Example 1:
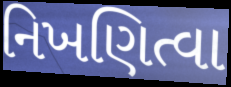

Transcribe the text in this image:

નિખણિત્વા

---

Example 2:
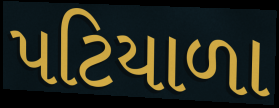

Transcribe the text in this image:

પટિયાળા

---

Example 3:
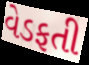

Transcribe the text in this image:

વેડફતી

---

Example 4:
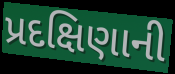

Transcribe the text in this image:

પ્રદક્ષિણાની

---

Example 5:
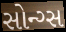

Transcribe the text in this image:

સોન્ગ્સ